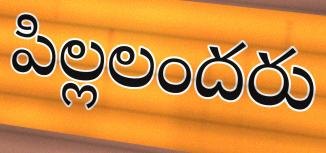
పిల్లలందరు